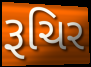
રૂચિર